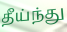
தீய்ந்து